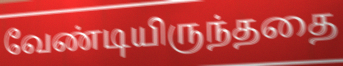
வேண்டியிருந்ததை